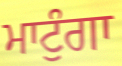
ਮਾਟੁੰਗਾ